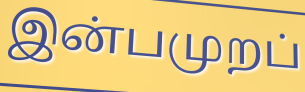
இன்பமுறப்